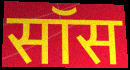
सॉस